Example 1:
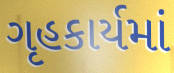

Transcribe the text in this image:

ગૃહકાર્યમાં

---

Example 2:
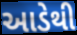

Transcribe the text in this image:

આડેથી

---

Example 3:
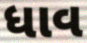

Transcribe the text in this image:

ધાવ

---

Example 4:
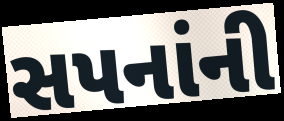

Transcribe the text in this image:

સપનાંની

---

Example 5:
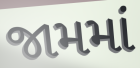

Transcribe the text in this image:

જામમાં